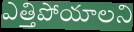
ఎత్తిపోయాలని